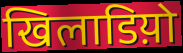
खिलाडिय़ो